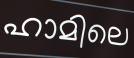
ഹാമിലെ